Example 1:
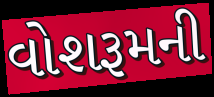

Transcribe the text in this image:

વોશરૂમની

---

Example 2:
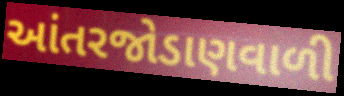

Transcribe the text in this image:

આંતરજોડાણવાળી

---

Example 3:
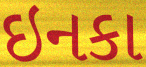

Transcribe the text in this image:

ઇનકા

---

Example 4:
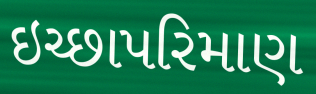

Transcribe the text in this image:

ઇચ્છાપરિમાણ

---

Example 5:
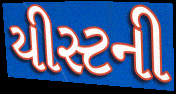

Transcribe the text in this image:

યીસ્ટની